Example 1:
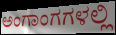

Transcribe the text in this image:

ಅಂಗಾಂಗಗಳಲ್ಲಿ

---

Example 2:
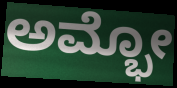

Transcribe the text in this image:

ಅಮ್ಭೋ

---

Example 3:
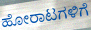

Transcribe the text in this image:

ಹೋರಾಟಗಳಿಗೆ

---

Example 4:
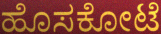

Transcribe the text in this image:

ಹೊಸಕೋಟೆ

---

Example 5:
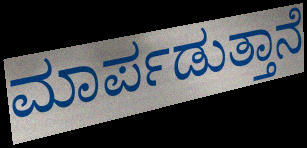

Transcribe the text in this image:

ಮಾರ್ಪಡುತ್ತಾನೆ